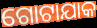
ଗୋଟାଯାକ